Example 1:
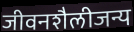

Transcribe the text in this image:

जीवनशैलीजन्य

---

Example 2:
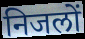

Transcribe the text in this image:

निजलों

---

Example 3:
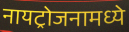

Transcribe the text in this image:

नायट्रोजनामध्ये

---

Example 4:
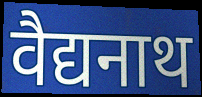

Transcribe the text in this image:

वैद्यनाथ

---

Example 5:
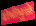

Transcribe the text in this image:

दोघींमुळे